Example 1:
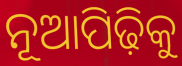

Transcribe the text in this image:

ନୂଆପିଢ଼ିକୁ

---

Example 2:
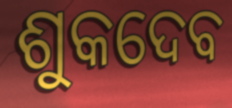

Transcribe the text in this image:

ଶୁକଦେବ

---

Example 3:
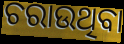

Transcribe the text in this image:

ଚରାଉଥିବା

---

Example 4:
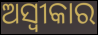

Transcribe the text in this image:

ଅସ୍ୱୀକାର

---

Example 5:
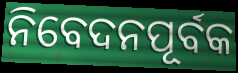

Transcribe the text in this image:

ନିବେଦନପୂର୍ବକ